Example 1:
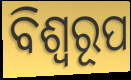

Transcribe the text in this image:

ବିଶ୍ଵରୂପ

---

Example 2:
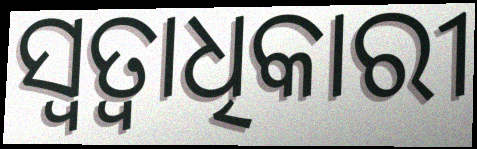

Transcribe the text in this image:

ସ୍ଵତ୍ୱାଧିକାରୀ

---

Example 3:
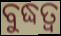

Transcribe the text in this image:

ବୁଦ୍ଧତ୍ୱ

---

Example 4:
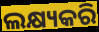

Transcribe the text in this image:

ଲକ୍ଷ୍ୟକରି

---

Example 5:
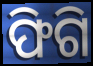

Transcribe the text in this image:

ଫିଗି